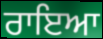
ਰਾਇਆ